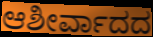
ಆಶೀರ್ವಾದದ